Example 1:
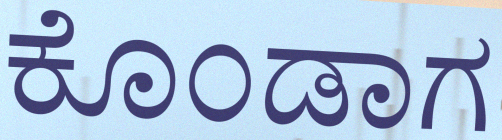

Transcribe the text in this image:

ಕೊಂಡಾಗ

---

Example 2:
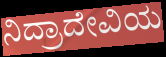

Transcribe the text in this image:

ನಿದ್ರಾದೇವಿಯ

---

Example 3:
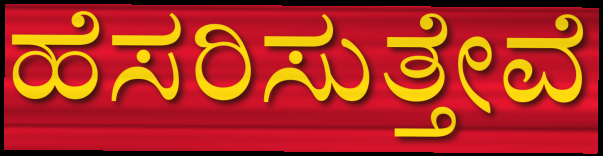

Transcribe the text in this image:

ಹೆಸರಿಸುತ್ತೇವೆ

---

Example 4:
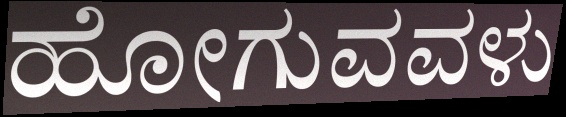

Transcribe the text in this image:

ಹೋಗುವವಳು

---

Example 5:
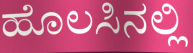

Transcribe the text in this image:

ಹೊಲಸಿನಲ್ಲಿ